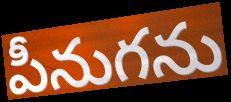
పీనుగను